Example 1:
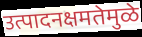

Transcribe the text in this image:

उत्पादनक्षमतेमुळे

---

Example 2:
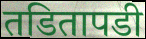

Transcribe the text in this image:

तडितापडी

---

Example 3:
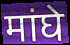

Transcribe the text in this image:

मांघे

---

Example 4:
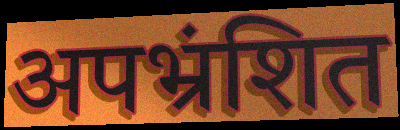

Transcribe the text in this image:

अपभ्रंशित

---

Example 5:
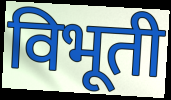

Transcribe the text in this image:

विभूती